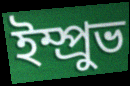
ইম্প্রুভ